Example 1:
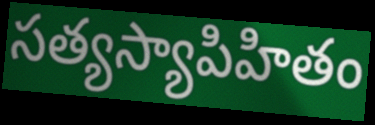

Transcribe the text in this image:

సత్యస్యాపిహితం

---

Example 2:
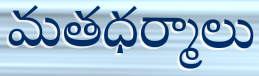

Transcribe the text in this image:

మతధర్మాలు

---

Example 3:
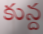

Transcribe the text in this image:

కున్ద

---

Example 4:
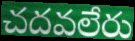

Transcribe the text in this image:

చదవలేరు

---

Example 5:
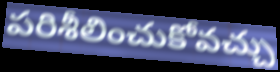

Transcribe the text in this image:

పరిశీలించుకోవచ్చు